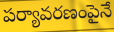
పర్యావరణంపైనే